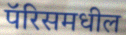
पॅरिसमधील